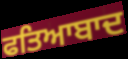
ਫਤਿਆਬਾਦ